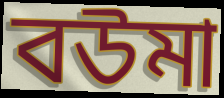
বউমা